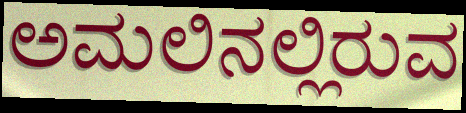
ಅಮಲಿನಲ್ಲಿರುವ